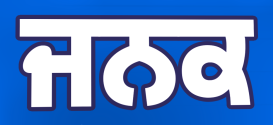
ਜਨਕ